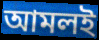
আমলই